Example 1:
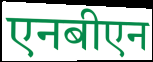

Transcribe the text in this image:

एनबीएन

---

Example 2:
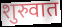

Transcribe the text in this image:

शुरुवात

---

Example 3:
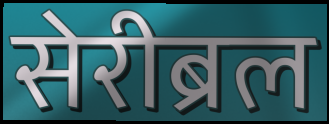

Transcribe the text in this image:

सेरीब्रल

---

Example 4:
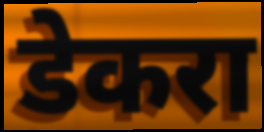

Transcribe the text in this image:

डेकरा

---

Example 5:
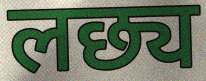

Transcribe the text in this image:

लछ्य